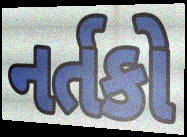
નર્તકો